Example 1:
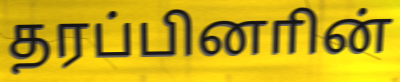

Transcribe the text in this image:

தரப்பினரின்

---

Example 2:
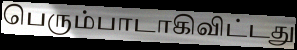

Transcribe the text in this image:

பெரும்பாடாகிவிட்டது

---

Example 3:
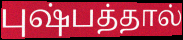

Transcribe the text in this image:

புஷ்பத்தால்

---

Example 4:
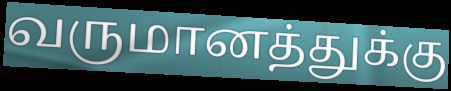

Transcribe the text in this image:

வருமானத்துக்கு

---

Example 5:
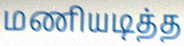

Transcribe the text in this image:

மணியடித்த